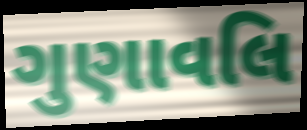
ગુણાવલિ